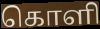
கொளி